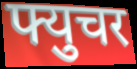
फ्युचर